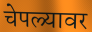
चेपल्यावर